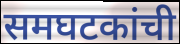
समघटकांची